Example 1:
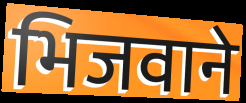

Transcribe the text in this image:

भिजवाने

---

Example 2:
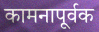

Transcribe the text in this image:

कामनापूर्वक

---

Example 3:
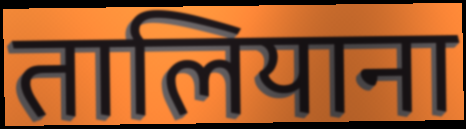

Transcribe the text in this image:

तालियाना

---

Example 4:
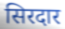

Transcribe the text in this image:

सिरदार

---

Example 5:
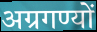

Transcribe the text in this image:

अग्रगण्यों